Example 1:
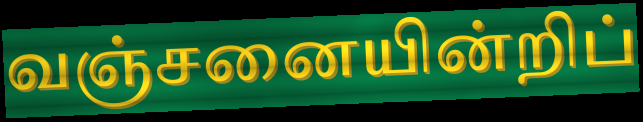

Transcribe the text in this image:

வஞ்சனையின்றிப்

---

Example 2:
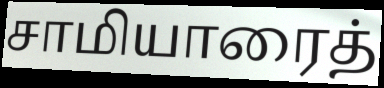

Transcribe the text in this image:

சாமியாரைத்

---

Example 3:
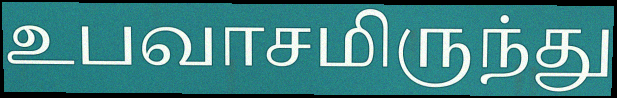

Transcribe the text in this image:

உபவாசமிருந்து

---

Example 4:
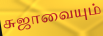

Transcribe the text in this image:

சுஜாவையும்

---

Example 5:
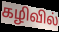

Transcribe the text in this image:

கழிவில்